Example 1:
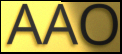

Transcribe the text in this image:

AAO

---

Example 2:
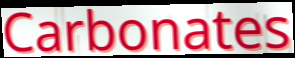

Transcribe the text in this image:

Carbonates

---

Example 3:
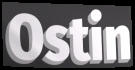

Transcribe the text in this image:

Ostin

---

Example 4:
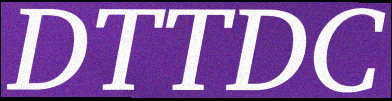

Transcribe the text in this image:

DTTDC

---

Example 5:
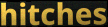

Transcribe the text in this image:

hitches